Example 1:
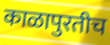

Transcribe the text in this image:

काळापुरतीच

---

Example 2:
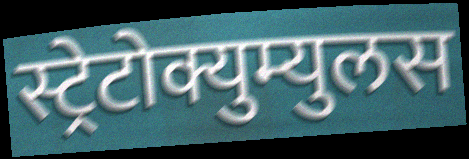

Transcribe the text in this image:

स्ट्रेटोक्युम्युलस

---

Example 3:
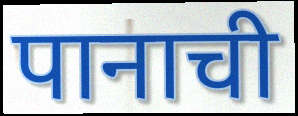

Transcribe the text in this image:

पानाची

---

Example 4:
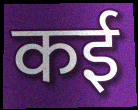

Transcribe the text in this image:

कई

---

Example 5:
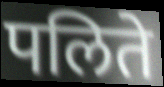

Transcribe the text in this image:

पलिते